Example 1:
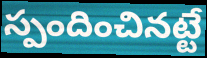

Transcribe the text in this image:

స్పందించినట్టే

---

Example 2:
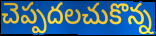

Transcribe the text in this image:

చెప్పదలచుకొన్న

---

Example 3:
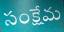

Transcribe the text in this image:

సంక్షేమ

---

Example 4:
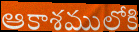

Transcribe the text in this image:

ఆకాశములోకి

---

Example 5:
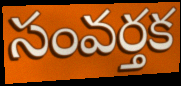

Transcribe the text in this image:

సంవర్తక